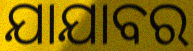
ଯାଯାବର